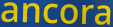
ancora